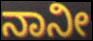
ನಾನೀ